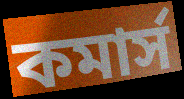
কমার্স